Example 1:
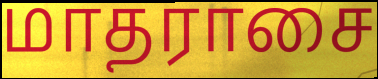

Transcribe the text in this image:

மாதராசை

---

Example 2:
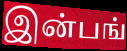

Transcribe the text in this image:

இன்பங்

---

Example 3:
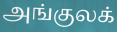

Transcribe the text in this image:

அங்குலக்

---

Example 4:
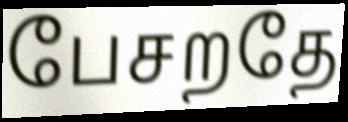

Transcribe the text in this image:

பேசறதே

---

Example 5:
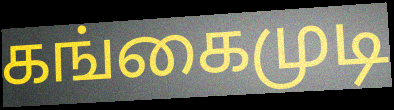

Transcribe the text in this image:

கங்கைமுடி